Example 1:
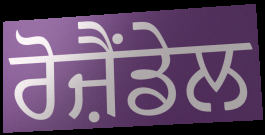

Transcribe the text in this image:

ਰੋਜ਼ੈਂਡੇਲ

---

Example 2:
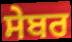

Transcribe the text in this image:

ਸੇਬਰ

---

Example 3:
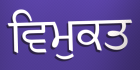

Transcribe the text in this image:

ਵਿਮੁਕਤ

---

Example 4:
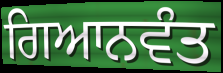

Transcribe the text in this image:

ਗਿਆਨਵੰਤ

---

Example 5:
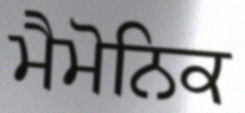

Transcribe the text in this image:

ਮੈਮੋਨਿਕ